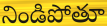
నిండిపోతూ